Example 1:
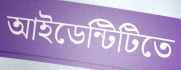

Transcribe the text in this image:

আইডেন্টিটিতে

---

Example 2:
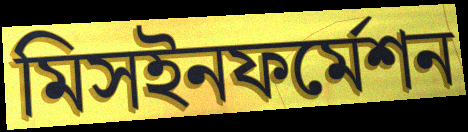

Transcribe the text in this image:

মিসইনফর্মেশন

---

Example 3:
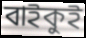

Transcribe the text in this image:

বাইকুই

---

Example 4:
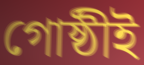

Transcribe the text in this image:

গোষ্ঠীই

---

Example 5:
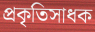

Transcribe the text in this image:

প্রকৃতিসাধক